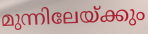
മുന്നിലേയ്ക്കും